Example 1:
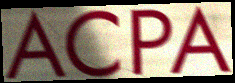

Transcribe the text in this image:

ACPA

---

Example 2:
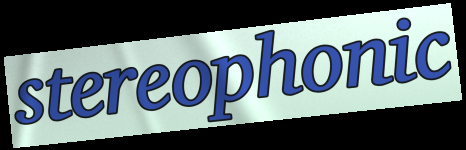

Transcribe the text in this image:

stereophonic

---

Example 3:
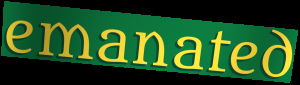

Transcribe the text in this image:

emanated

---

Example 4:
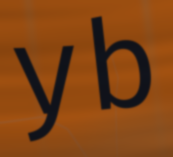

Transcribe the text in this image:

yb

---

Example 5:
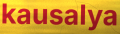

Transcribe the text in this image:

kausalya